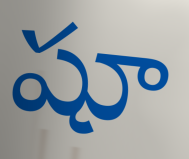
షూ